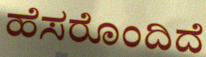
ಹೆಸರೊಂದಿದೆ